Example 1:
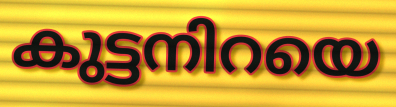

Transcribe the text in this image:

കുട്ടനിറയെ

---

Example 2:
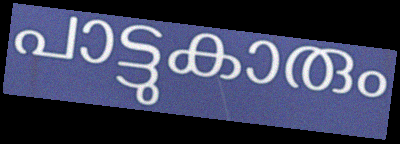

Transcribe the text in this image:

പാട്ടുകാരും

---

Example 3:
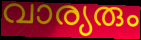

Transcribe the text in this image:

വാര്യരും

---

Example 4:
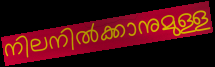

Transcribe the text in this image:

നിലനിൽക്കാനുമുള്ള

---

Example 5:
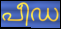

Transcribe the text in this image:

പീഡ